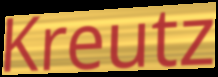
Kreutz